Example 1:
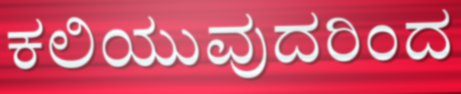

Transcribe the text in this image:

ಕಲಿಯುವುದರಿಂದ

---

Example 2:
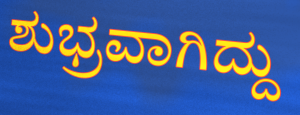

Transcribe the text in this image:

ಶುಭ್ರವಾಗಿದ್ದು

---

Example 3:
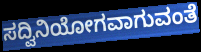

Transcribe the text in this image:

ಸದ್ವಿನಿಯೋಗವಾಗುವಂತೆ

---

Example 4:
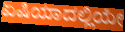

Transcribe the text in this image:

ಏಷಿಯಾದಲ್ಲಿಯೇ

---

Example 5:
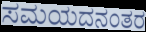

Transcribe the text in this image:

ಸಮಯದನಂತರ